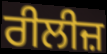
ਰੀਲੀਜ਼